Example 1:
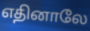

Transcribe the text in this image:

எதினாலே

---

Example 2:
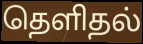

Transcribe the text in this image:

தெளிதல்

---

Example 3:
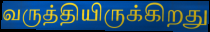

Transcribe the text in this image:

வருத்தியிருக்கிறது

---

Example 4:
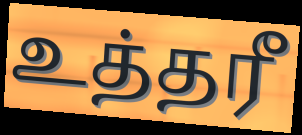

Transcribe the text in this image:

உத்தரீ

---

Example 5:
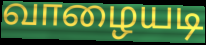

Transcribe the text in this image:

வாழையடி